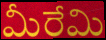
మీరేమి